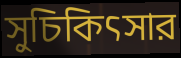
সুচিকিৎসার